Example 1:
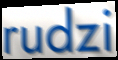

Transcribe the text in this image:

rudzi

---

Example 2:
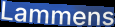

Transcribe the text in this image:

Lammens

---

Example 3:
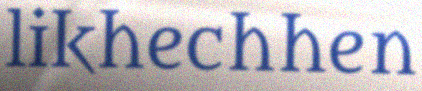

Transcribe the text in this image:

likhechhen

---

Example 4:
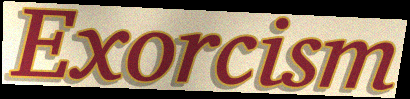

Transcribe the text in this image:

Exorcism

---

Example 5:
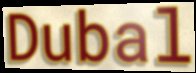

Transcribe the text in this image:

Dubal